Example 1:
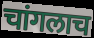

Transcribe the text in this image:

चांगलाच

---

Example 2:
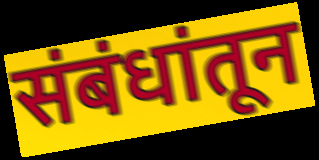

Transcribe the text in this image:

संबंधांतून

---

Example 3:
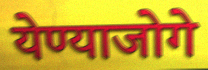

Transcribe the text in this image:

येण्याजोगे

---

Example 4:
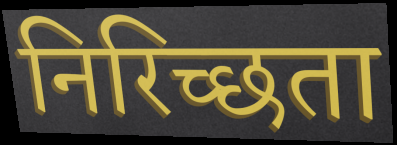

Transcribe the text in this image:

निरिच्छता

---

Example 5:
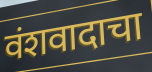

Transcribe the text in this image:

वंशवादाचा